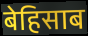
बेहिसाब